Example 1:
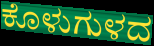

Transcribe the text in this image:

ಕೊಳುಗುಳದ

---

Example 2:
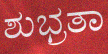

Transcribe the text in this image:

ಶುಭ್ರತಾ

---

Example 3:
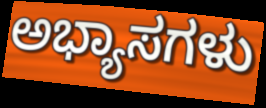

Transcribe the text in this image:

ಅಭ್ಯಾಸಗಳು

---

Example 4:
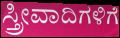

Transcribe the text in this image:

ಸ್ತ್ರೀವಾದಿಗಳಿಗೆ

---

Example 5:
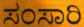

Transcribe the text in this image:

ಸಂಸಾರಿ